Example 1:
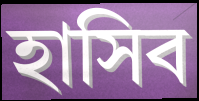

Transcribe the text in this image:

হাসিব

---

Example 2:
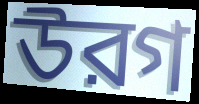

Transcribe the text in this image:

উরগ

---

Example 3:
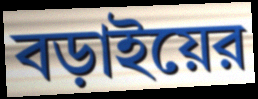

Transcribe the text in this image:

বড়াইয়ের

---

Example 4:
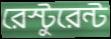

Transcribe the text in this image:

রেস্টুরেন্ট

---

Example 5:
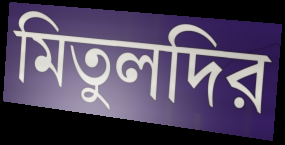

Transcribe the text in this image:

মিতুলদির